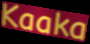
Kaaka